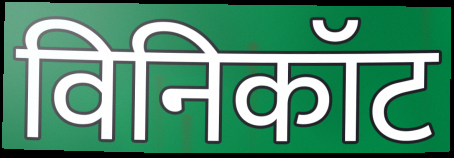
विनिकॉट